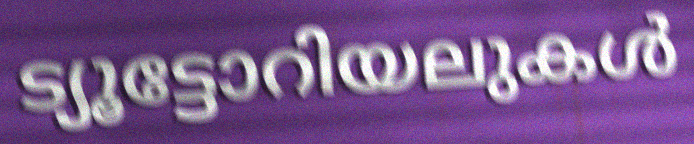
ട്യൂട്ടോറിയലുകൾ